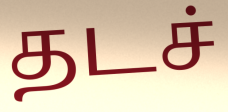
தடச்